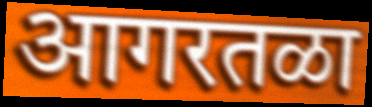
आगरतळा